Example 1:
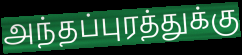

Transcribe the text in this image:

அந்தப்புரத்துக்கு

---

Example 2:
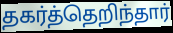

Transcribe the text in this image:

தகர்த்தெறிந்தார்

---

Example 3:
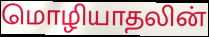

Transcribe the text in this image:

மொழியாதலின்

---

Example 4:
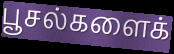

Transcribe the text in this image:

பூசல்களைக்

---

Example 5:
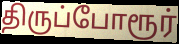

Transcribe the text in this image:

திருப்போரூர்